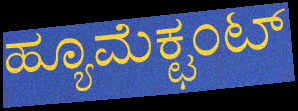
ಹ್ಯೂಮೆಕ್ಟಂಟ್